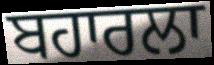
ਬਹਾਰਲਾ